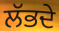
ਲੱਭਦੇ